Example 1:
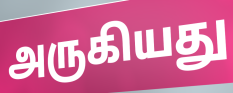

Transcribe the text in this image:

அருகியது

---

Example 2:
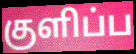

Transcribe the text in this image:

குளிப்ப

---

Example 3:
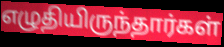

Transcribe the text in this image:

எழுதியிருந்தார்கள்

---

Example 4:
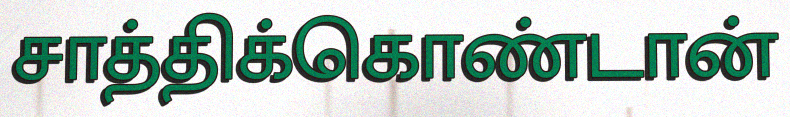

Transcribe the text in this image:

சாத்திக்கொண்டான்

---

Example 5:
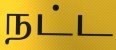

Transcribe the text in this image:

நட்ட